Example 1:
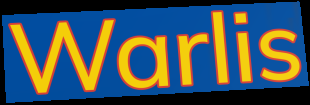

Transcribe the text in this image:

Warlis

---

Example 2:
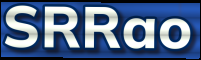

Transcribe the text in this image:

SRRao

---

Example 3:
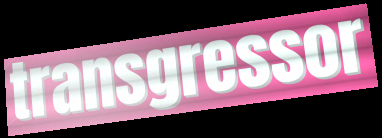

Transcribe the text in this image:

transgressor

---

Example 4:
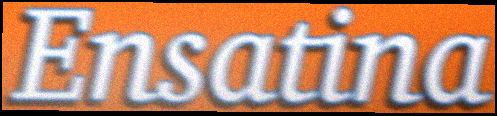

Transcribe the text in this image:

Ensatina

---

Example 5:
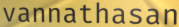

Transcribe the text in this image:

vannathasan